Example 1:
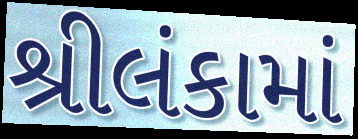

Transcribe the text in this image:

શ્રીલંકામાં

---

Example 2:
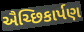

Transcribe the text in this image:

ઐચ્છિકાર્પણ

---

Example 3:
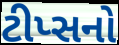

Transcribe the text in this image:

ટીપ્સનો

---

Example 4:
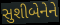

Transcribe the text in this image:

સુશીબેનેને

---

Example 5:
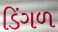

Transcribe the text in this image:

ડિંગળ